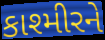
કાશ્મીરને